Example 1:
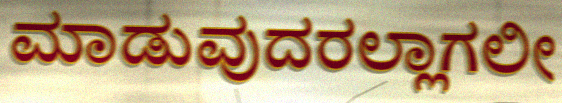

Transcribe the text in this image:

ಮಾಡುವುದರಲ್ಲಾಗಲೀ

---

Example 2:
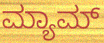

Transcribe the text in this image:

ಮ್ಯಾಮ್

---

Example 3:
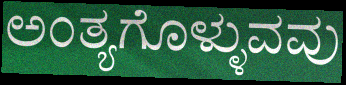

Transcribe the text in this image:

ಅಂತ್ಯಗೊಳ್ಳುವವು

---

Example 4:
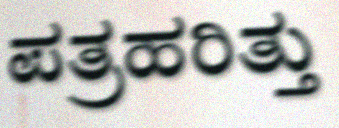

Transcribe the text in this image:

ಪತ್ರಹರಿತ್ತು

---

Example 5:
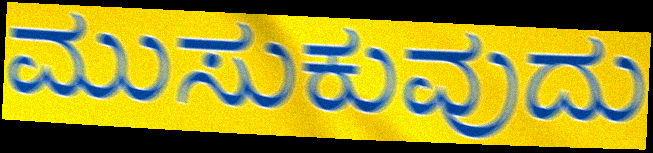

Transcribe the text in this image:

ಮುಸುಕುವುದು